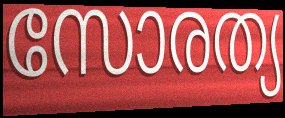
സോരത്യ